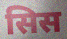
सिस